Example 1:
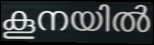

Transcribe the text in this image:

കൂനയിൽ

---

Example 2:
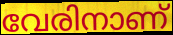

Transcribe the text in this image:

വേരിനാണ്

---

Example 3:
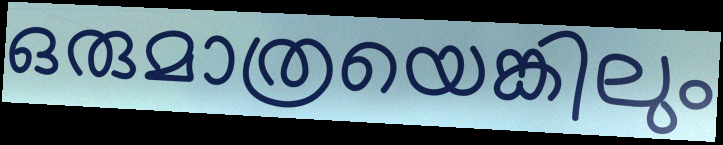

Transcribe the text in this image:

ഒരുമാത്രയെങ്കിലും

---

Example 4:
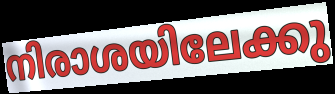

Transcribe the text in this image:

നിരാശയിലേക്കു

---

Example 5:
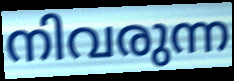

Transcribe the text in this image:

നിവരുന്ന